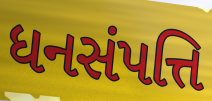
ધનસંપત્તિ